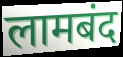
लामबंद